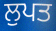
ਲੁਪਤ